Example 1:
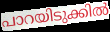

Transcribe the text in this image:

പാറയിടുക്കിൽ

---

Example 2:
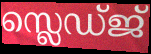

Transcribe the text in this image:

സ്ലെഡ്ജ്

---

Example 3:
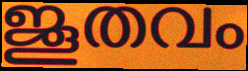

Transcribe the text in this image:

ജൂതവം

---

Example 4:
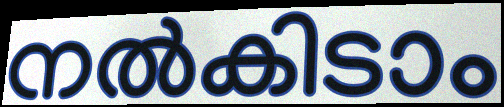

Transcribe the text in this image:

നൽകിടാം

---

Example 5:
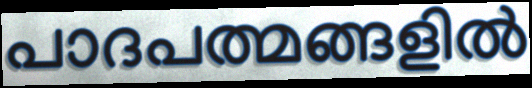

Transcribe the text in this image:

പാദപത്മങ്ങളിൽ